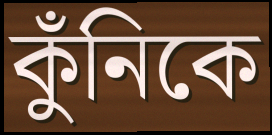
কুঁনিকে